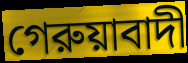
গেরুয়াবাদী